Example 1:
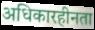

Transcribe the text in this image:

अधिकारहीनता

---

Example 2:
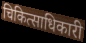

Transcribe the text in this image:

चिकित्साधिकारी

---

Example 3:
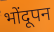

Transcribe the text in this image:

भोंदूपन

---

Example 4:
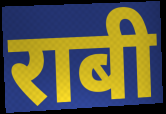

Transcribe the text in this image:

राबी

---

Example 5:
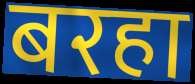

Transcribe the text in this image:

बरहा